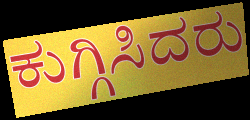
ಕುಗ್ಗಿಸಿದರು